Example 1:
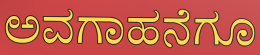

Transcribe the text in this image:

ಅವಗಾಹನೆಗೂ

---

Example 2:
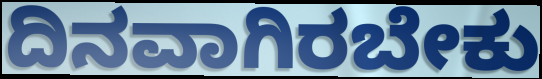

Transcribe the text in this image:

ದಿನವಾಗಿರಬೇಕು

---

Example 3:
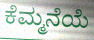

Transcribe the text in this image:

ಕೆಮ್ಮನೆಯೆ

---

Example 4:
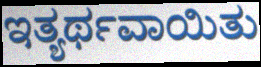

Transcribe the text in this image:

ಇತ್ಯರ್ಥವಾಯಿತು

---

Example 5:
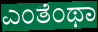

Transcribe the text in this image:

ಎಂತೆಂಥಾ